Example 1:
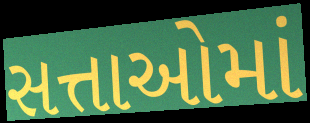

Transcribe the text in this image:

સત્તાઓમાં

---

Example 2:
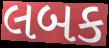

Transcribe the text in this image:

લબક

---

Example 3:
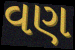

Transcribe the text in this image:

વણ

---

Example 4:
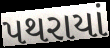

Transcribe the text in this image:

પથરાયાં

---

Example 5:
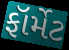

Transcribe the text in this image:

ફૉર્મેટ